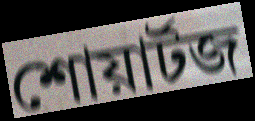
শোয়ার্টজ